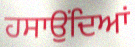
ਹਸਾਉਂਦਿਆਂ